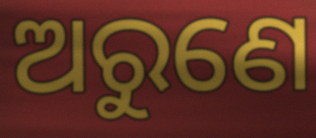
ଅରୁଣେ